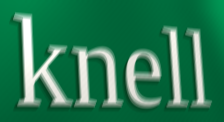
knell